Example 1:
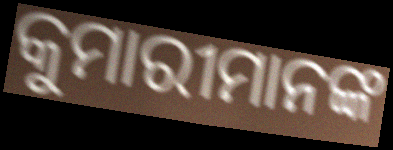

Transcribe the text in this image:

କୁମାରୀମାନଙ୍କ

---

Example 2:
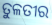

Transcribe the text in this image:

ତୁଳତୀର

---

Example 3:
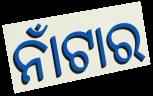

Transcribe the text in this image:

ନାଁଟାର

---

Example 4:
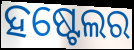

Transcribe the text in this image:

ହଷ୍ଟେଲର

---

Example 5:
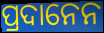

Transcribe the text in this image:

ପ୍ରଦାନେନ